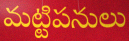
మట్టిపనులు